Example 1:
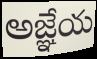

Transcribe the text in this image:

అజ్ఞేయ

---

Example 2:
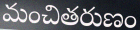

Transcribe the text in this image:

మంచితరుణం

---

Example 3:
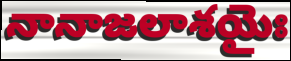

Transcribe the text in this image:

నానాజలాశయైః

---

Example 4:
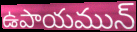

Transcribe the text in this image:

ఉపాయమున్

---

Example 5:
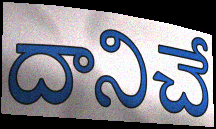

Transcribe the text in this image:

దానిచే